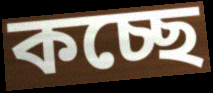
কচ্ছে